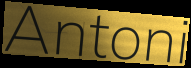
Antoni